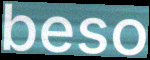
beso